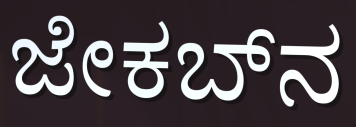
ಜೇಕಬ್‌ನ